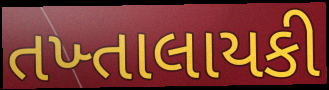
તખ્તાલાયકી